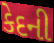
કેદની